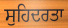
ਸੁਹਿਦਰਤਾ